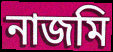
নাজমি